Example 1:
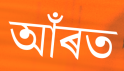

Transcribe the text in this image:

আঁৰত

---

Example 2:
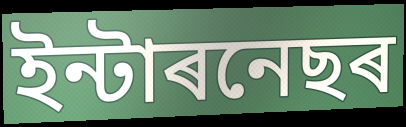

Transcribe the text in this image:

ইন্টাৰনেছৰ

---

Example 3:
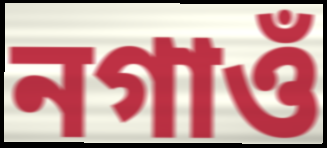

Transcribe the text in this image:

নগাওঁ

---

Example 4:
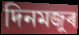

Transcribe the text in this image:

দিনমজুৰ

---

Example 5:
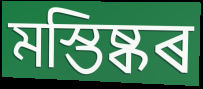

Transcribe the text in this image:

মস্তিষ্কৰ